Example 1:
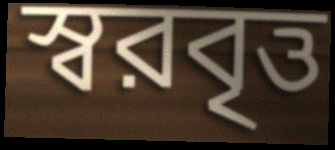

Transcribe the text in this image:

স্বরবৃত্ত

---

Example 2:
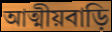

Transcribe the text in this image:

আত্মীয়বাড়ি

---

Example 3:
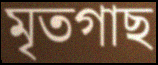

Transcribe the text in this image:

মৃতগাছ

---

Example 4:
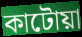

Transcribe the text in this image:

কাটোয়া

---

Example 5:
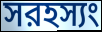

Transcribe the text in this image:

সরহস্যং